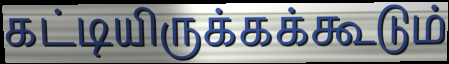
கட்டியிருக்கக்கூடும்